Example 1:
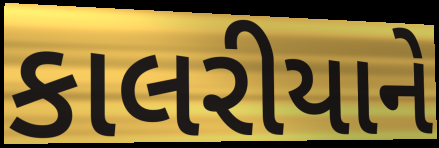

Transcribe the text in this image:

કાલરીયાને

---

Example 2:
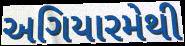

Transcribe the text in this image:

અગિયારમેથી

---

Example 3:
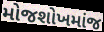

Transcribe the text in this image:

મોજશોખમાંજ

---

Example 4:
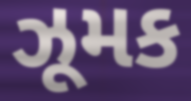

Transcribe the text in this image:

ઝૂમક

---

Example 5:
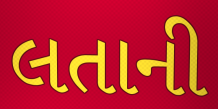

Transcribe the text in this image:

લતાની